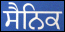
ਸੈਨਿਕ